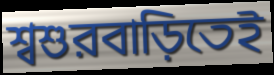
শ্বশুরবাড়িতেই